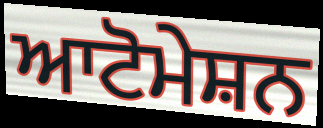
ਆਟੋਮੇਸ਼ਨ